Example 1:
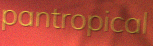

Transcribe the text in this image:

pantropical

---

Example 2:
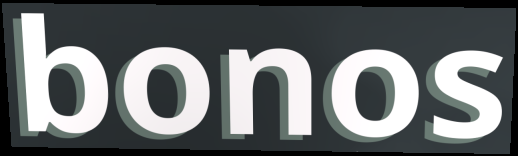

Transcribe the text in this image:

bonos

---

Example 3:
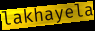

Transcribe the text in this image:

lakhayela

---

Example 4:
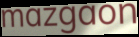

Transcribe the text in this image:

mazgaon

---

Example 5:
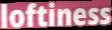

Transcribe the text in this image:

loftiness